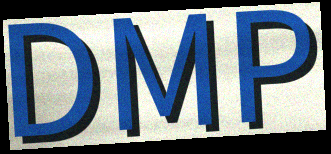
DMP